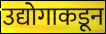
उद्योगाकडून